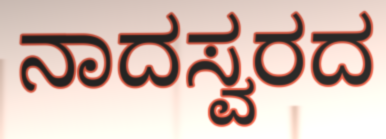
ನಾದಸ್ವರದ